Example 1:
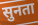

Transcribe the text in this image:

सुनता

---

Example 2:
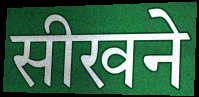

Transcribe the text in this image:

सीखने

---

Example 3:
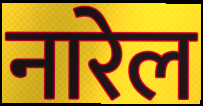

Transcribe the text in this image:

नारेल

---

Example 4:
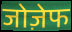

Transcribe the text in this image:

जोज़ेफ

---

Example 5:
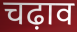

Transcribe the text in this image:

चढ़ाव